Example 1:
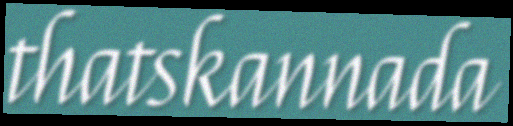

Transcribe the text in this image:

thatskannada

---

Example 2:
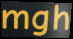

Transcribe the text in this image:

mgh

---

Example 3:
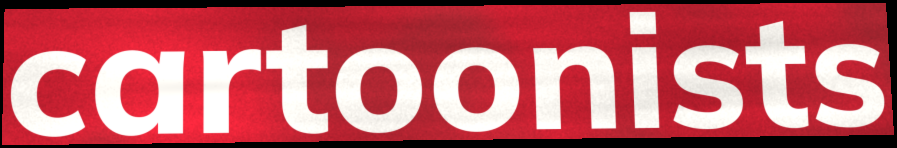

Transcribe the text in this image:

cartoonists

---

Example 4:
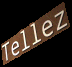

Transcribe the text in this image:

Tellez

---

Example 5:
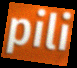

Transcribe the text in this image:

pili